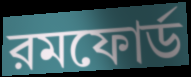
রমফোর্ড